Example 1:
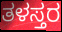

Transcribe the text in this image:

ತಳಸ್ತರ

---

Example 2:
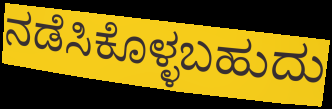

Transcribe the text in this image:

ನಡೆಸಿಕೊಳ್ಳಬಹುದು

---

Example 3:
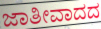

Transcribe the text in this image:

ಜಾತೀವಾದದ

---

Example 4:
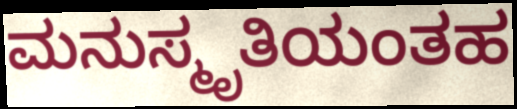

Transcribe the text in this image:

ಮನುಸ್ಮೃತಿಯಂತಹ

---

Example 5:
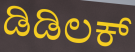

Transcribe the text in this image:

ಡಿಡಿಲಕ್